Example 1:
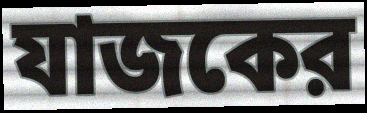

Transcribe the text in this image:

যাজকের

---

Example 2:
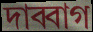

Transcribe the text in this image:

দাব্বাগ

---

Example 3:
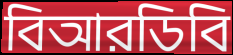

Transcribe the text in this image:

বিআরডিবি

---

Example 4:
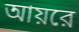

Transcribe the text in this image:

আয়রে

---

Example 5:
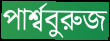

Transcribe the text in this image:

পার্শ্ববুরুজ